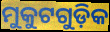
ମୁକୁଟଗୁଡ଼ିକ